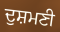
ਦੁਸ਼ਮਣੀ